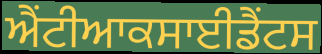
ਐਂਟੀਆਕਸਾਈਡੈਂਟਸ